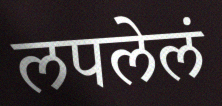
लपलेलं